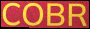
COBR